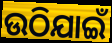
ଉଠିଯାଇଁ